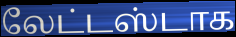
லேட்டஸ்டாக